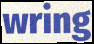
wring